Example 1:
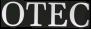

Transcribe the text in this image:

OTEC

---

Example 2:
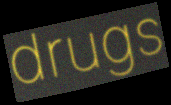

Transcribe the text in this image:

drugs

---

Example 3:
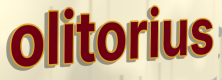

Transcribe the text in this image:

olitorius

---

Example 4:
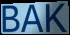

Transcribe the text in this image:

BAK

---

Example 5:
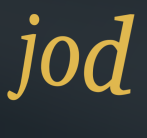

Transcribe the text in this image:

jod